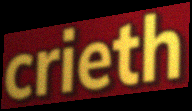
crieth